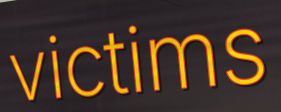
victims